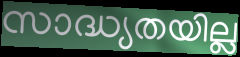
സാദ്ധ്യതയില്ല